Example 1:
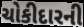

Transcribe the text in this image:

ચોકીદારની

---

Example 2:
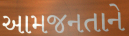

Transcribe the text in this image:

આમજનતાને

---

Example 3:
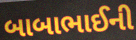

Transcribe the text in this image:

બાબાભાઈની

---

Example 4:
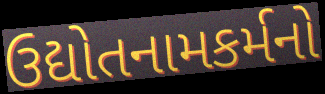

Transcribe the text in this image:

ઉદ્યોતનામકર્મનો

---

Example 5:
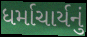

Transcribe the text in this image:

ધર્માચાર્યનું